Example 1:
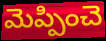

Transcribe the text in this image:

మెప్పించె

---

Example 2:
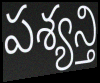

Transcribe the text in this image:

పశ్యన్తి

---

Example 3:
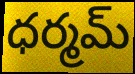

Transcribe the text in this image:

ధర్మమ్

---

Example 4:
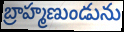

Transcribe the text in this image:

బ్రాహ్మణుండును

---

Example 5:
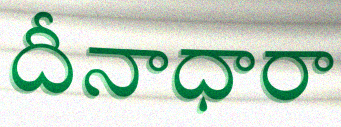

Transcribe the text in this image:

దీనాధారా